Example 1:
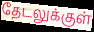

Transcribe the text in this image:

தேடலுக்குள்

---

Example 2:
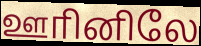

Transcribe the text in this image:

ஊரினிலே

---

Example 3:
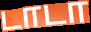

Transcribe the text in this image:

டாடா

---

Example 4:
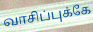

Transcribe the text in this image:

வாசிப்புக்கே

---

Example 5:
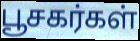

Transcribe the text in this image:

பூசகர்கள்